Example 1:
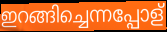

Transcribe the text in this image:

ഇറങ്ങിച്ചെന്നപ്പോള്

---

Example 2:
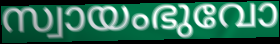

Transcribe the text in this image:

സ്വായംഭുവോ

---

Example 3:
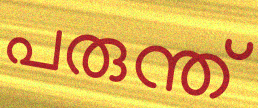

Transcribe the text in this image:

പരുന്ത്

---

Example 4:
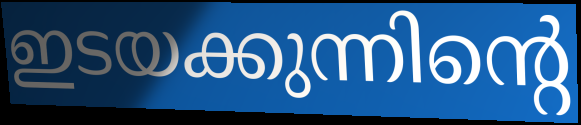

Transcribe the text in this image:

ഇടയക്കുന്നിന്റെ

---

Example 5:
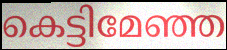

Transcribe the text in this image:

കെട്ടിമേഞ്ഞ